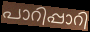
പാറിപ്പാറി